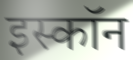
इस्कॉन